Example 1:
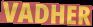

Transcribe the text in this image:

VADHER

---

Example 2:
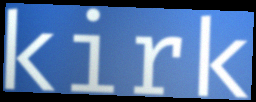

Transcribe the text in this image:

kirk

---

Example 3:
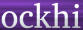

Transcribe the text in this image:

ockhi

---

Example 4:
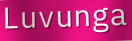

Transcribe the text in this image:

Luvunga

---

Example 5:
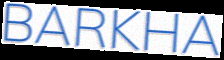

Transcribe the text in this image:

BARKHA